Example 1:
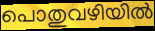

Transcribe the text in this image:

പൊതുവഴിയിൽ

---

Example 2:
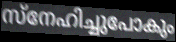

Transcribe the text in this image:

സ്നേഹിച്ചുപോകും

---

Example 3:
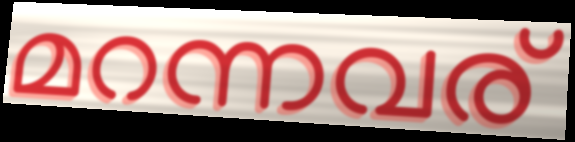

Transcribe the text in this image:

മറന്നവര്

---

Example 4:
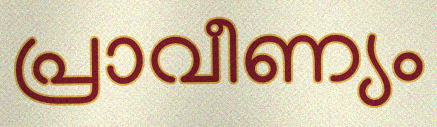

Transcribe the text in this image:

പ്രാവീണ്യം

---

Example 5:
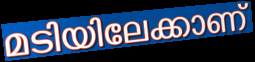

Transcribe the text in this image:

മടിയിലേക്കാണ്